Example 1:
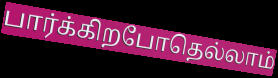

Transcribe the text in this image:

பார்க்கிறபோதெல்லாம்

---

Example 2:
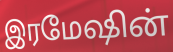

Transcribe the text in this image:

இரமேஷின்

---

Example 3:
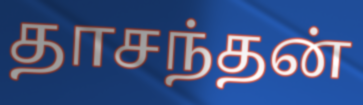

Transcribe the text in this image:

தாசந்தன்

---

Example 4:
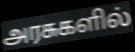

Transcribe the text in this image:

அரசுகளில்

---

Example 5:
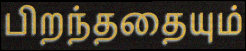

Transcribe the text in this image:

பிறந்ததையும்